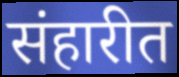
संहारीत